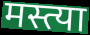
मस्त्या